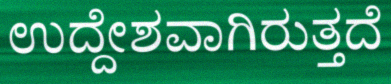
ಉದ್ದೇಶವಾಗಿರುತ್ತದೆ